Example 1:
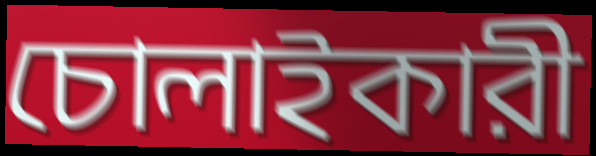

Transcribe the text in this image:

চোলাইকারী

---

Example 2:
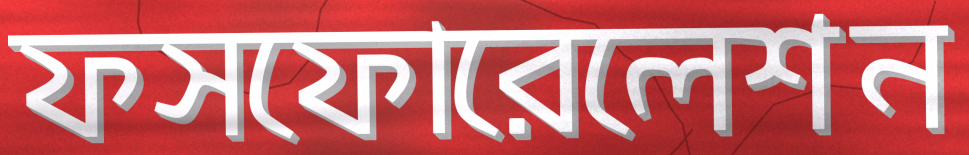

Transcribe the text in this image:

ফসফোরেলেশন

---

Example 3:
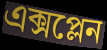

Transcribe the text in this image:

এক্সপ্লেন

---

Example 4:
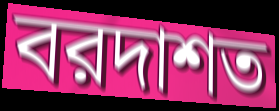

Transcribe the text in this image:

বরদাশত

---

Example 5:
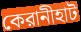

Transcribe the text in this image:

কেরানীহাট